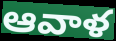
ఆవాళ